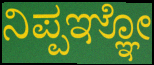
ನಿಪ್ಪಞ್ಞೋ